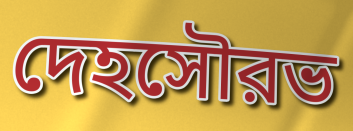
দেহসৌরভ